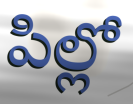
పిల్లో